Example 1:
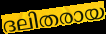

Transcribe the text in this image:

ദലിതരായ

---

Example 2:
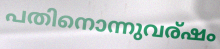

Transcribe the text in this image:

പതിനൊന്നുവര്ഷം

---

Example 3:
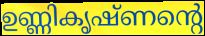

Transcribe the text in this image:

ഉണ്ണികൃഷ്ണന്റെ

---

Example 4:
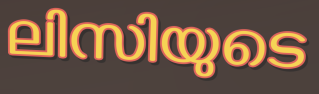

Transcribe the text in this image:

ലിസിയുടെ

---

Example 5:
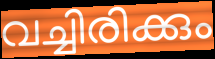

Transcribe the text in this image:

വച്ചിരിക്കും